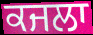
ਕਜਲਾ